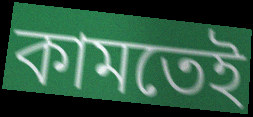
কামতেই